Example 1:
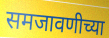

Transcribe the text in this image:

समजावणीच्या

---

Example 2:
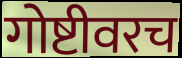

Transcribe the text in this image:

गोष्टीवरच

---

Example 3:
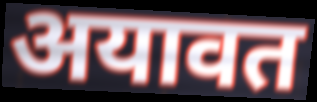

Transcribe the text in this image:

अयावत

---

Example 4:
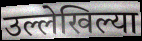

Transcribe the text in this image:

उल्लेखिल्या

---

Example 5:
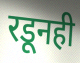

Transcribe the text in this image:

रडूनही